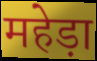
महेड़ा